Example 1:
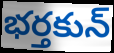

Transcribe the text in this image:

భర్తకున్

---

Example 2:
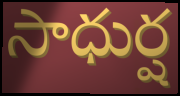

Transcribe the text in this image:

సాధుర్ష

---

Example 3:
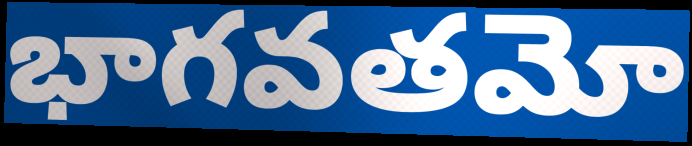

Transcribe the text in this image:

భాగవతమో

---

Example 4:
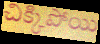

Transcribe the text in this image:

చిక్కిపోయి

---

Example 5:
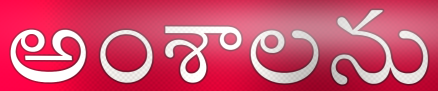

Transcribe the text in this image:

అంశాలను